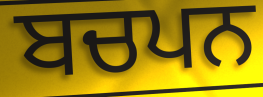
ਬਚਪਨ